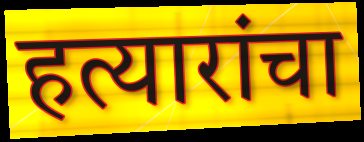
हत्यारांचा